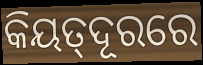
କିୟତ୍‌ଦୂରରେ